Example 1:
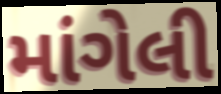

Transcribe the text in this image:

માંગેલી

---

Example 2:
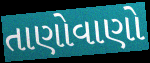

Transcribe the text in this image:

તાણોવાણો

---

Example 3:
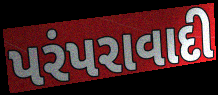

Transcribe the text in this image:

પરંપરાવાદી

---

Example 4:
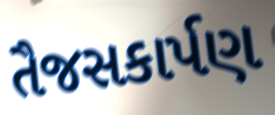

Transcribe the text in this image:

તૈજસકાર્પણ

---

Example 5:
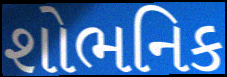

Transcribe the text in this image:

શોભનિક